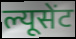
ल्यूसेंट